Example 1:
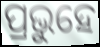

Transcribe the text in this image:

ପ୍ରଭୁହେ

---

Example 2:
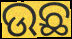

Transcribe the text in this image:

ଉଛ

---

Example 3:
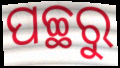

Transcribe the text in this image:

ପଚ୍ଛରୁ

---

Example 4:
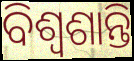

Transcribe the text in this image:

ବିଶ୍ୱଶାନ୍ତି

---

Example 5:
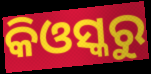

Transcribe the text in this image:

କିଓସ୍କରୁ